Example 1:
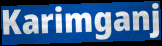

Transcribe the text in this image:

Karimganj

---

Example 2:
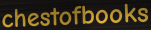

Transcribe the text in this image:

chestofbooks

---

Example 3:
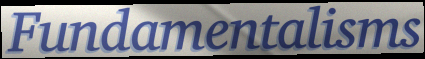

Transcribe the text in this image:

Fundamentalisms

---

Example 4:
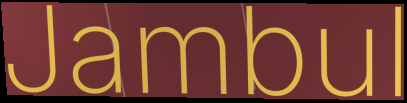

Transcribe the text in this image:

Jambul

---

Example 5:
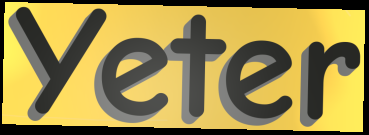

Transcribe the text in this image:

Yeter